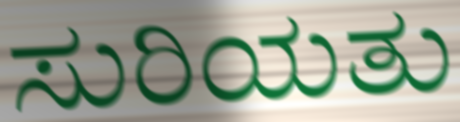
ಸುರಿಯತು